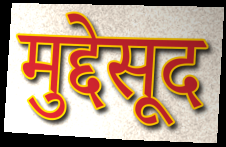
मुद्देसूद